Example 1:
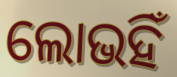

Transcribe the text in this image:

ଲୋଭହିଁ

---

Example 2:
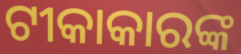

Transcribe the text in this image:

ଟୀକାକାରଙ୍କ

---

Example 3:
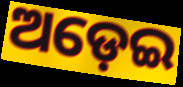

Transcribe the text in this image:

ଅଡ଼େଇ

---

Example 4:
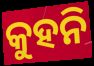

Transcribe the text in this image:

କୁହନି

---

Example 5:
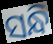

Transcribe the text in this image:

ସନ୍ଧି